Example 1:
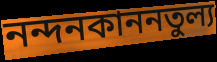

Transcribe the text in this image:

নন্দনকাননতুল্য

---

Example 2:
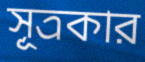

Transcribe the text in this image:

সূত্রকার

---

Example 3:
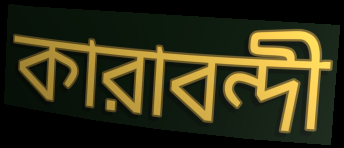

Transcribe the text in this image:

কারাবন্দী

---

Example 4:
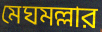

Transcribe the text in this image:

মেঘমল্লার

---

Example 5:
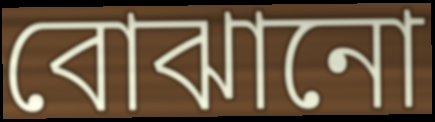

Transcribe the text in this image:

বোঝানো